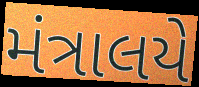
મંત્રાલયે